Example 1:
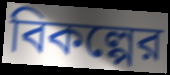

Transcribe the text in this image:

বিকল্পের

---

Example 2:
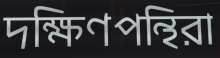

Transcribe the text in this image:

দক্ষিণপন্থিরা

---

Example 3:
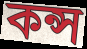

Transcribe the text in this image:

কন্স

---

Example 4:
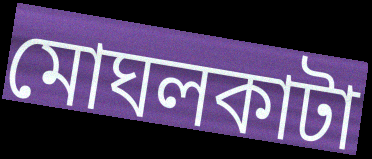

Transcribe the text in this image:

মোঘলকাটা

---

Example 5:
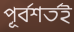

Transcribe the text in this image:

পূর্বশর্তই